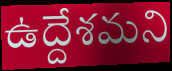
ఉద్దేశమని